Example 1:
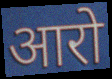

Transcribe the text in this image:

आरो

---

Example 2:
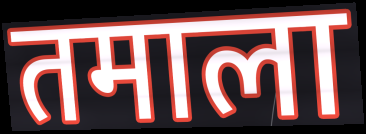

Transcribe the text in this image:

तमाला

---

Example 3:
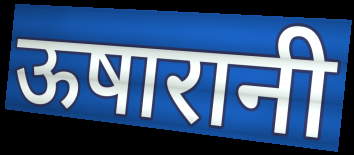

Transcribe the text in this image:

ऊषारानी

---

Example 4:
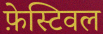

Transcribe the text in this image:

फ़ेस्टिवल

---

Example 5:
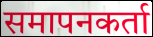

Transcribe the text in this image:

समापनकर्ता